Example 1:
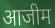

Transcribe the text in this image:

आजीम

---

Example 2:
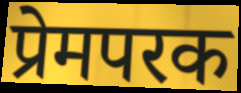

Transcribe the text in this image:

प्रेमपरक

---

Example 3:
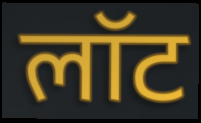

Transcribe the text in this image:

लॉट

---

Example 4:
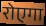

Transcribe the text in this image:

रोएगा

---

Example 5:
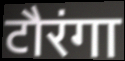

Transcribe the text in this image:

टौरंगा